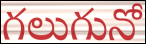
గలుగునో